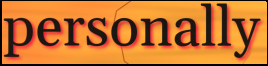
personally